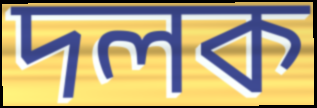
দলক